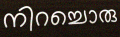
നിറച്ചൊരു